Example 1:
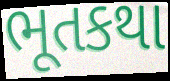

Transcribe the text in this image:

ભૂતકથા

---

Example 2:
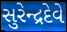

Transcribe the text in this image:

સુરેન્દ્રદેવે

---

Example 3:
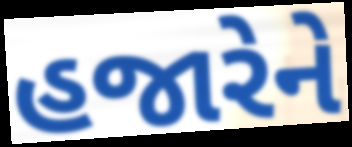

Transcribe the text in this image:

હજારેને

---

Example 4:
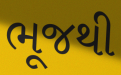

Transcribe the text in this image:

ભૂજથી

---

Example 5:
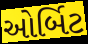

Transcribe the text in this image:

ઓર્બિટ